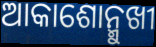
ଆକାଶୋନ୍ମୁଖୀ